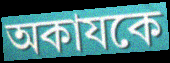
অকাযকে